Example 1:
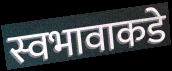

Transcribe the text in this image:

स्वभावाकडे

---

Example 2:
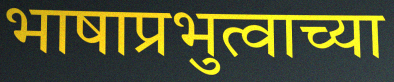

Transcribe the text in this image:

भाषाप्रभुत्वाच्या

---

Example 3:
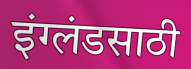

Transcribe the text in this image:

इंग्लंडसाठी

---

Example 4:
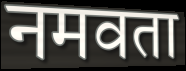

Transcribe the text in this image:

नमवता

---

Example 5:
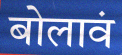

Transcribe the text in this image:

बोलावं